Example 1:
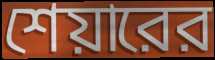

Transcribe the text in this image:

শেয়ারের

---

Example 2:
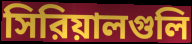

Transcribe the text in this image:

সিরিয়ালগুলি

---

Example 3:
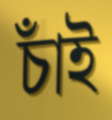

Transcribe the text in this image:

চাঁই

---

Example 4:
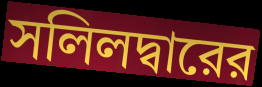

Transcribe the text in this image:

সলিলদ্বারের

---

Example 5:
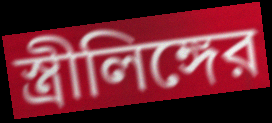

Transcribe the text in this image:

স্ত্রীলিঙ্গের